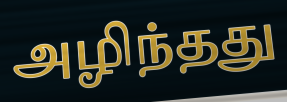
அழிந்தது